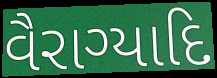
વૈરાગ્યાદિ